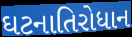
ઘટનાતિરોધાન